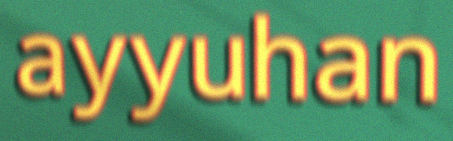
ayyuhan